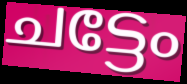
ചട്ടേം